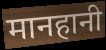
मानहानी